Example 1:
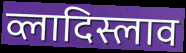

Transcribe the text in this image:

व्लादिस्लाव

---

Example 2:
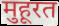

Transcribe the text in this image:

मुहूरत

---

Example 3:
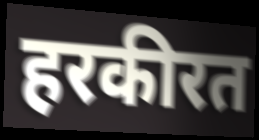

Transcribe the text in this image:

हरकीरत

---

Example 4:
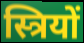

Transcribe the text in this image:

स्त्रियों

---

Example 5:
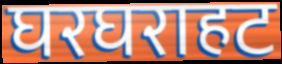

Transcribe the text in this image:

घरघराहट